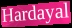
Hardayal